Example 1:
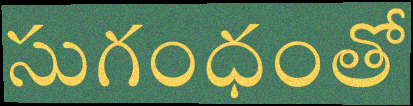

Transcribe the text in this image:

సుగంధంతో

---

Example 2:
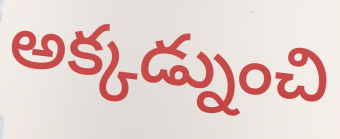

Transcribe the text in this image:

అక్కడ్నుంచి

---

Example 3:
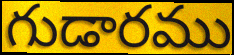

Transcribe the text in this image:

గుడారము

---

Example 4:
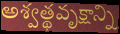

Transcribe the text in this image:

అశ్వత్థవృక్షాన్ని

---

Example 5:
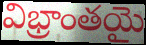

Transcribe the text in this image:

విభ్రాంతయై